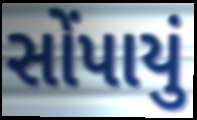
સોંપાયું